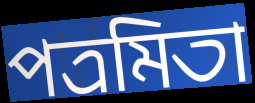
পত্রমিতা